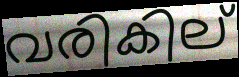
വരികില്